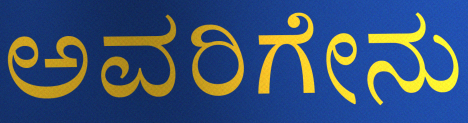
ಅವರಿಗೇನು